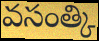
వసంత్కి